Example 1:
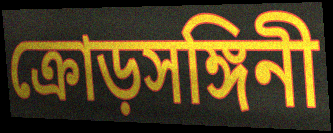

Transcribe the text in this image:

ক্রোড়সঙ্গিনী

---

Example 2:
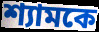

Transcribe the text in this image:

শ্যামকে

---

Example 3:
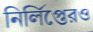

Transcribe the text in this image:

নির্লিপ্তেরও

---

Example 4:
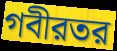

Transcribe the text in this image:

গবীরতর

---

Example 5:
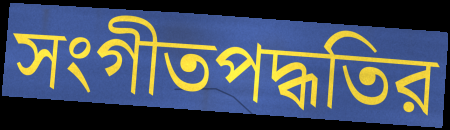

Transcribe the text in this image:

সংগীতপদ্ধতির